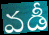
వడీ